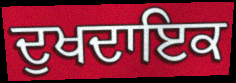
ਦੁਖਦਾਇਕ